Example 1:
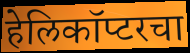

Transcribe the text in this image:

हेलिकॉप्टरचा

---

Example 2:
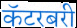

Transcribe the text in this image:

कॅटरबरी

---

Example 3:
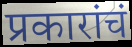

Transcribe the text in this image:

प्रकारांचं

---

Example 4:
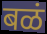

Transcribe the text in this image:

बळं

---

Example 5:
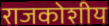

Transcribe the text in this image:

राजकोशीय